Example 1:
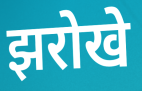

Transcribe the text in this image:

झरोखे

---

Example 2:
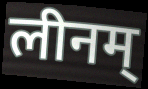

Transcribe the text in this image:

लीनम्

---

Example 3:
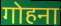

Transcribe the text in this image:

गोहना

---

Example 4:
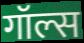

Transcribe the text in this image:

गॉल्स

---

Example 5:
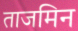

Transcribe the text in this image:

ताजमिन